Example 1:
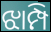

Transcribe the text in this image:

ଝାମ୍ପି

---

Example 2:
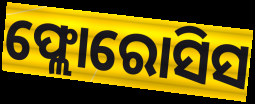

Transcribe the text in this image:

ଫ୍ଲୋରୋସିସ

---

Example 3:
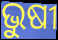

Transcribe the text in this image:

ଭୁଷୀ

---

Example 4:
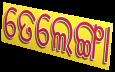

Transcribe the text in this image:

ତେଲେଙ୍ଗା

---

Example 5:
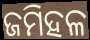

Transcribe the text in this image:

ଜମିହଳ